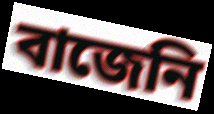
বাজেনি